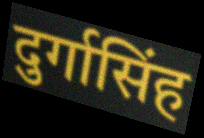
दुर्गासिंह